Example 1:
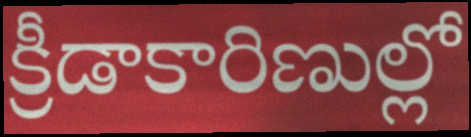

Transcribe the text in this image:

క్రీడాకారిణుల్లో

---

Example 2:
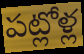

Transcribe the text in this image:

పట్లోళ్ల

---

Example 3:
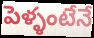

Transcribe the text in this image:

పెళ్ళంటేనే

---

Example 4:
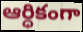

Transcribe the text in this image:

ఆర్ధికంగా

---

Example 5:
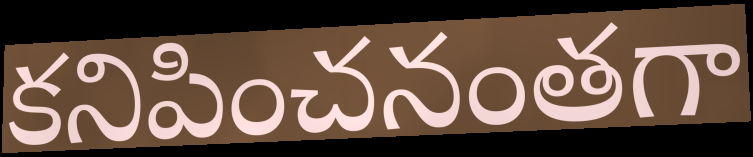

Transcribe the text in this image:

కనిపించనంతగా